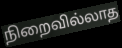
நிறைவில்லாத